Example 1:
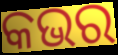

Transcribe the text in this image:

କଭର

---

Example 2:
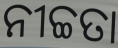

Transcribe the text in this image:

ନୀଚ୍ଚତା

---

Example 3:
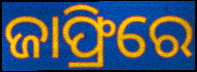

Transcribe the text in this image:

ଜାଫ୍ରିରେ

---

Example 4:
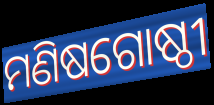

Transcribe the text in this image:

ମଣିଷଗୋଷ୍ଠୀ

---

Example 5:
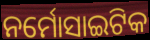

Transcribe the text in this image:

ନର୍ମୋସାଇଟିକ